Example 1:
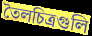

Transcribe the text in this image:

তৈলচিত্রগুলি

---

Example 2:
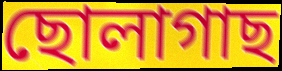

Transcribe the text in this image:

ছোলাগাছ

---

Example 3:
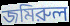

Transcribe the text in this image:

জমিরুল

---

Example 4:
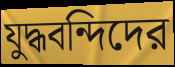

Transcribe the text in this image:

যুদ্ধবন্দিদের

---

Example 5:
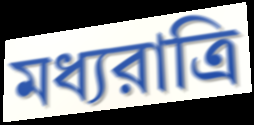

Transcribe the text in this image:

মধ্যরাত্রি